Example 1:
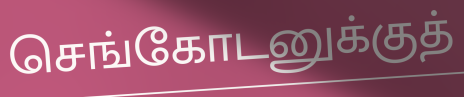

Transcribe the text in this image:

செங்கோடனுக்குத்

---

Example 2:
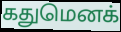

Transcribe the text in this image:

கதுமெனக்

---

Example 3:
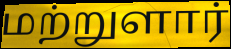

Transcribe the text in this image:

மற்றுளார்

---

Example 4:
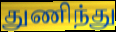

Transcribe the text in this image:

துணிந்து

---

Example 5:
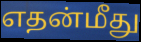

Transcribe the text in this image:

எதன்மீது